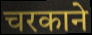
चरकाने